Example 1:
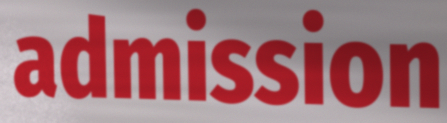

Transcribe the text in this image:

admission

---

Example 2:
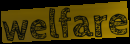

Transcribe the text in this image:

welfare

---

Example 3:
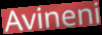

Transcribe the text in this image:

Avineni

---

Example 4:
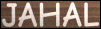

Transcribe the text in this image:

JAHAL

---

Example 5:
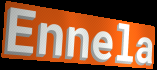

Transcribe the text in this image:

Ennela